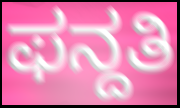
ಫನ್ದತಿ